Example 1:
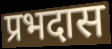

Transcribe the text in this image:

प्रभदास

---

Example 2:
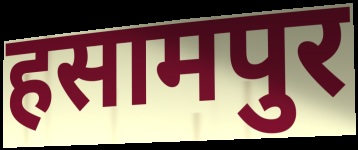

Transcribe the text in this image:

हसामपुर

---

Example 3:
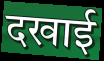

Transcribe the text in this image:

दखाई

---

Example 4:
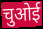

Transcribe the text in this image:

चुओई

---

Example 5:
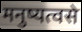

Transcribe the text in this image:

मनुष्यत्वसे